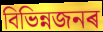
বিভিন্নজনৰ